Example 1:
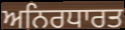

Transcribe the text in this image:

ਅਨਿਰਧਾਰਤ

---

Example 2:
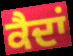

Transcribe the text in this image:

ਕੈਦਾਂ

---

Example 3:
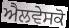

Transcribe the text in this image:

ਐਲਵੇਸਕੋ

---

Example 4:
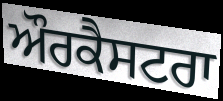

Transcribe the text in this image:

ਔਰਕੈਸਟਰਾ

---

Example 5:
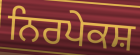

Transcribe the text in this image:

ਨਿਰਪੇਕਸ਼